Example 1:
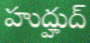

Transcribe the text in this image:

హుద్హుద్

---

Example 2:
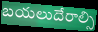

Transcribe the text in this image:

బయలుదేరాల్సి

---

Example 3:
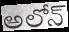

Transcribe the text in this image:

అలోన్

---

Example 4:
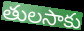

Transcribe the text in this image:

తులసాకు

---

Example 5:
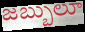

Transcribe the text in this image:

జబ్బులూ